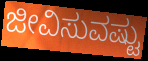
ಜೀವಿಸುವಷ್ಟು